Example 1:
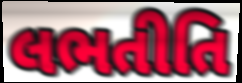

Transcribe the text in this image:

લભતીતિ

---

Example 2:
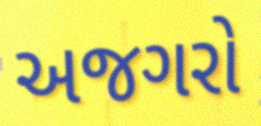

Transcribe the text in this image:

અજગરો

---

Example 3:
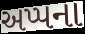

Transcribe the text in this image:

અપ્પના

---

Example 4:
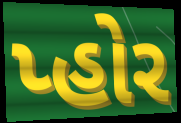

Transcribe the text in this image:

પ્હોર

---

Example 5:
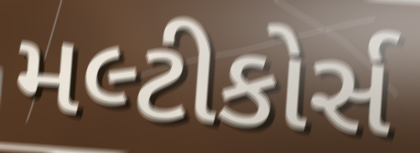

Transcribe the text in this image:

મલ્ટીકોર્સ